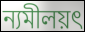
ন্যমীলয়ৎ